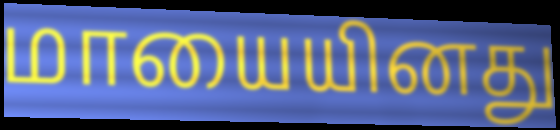
மாயையினது